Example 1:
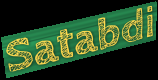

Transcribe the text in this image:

Satabdi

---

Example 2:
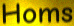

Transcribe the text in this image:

Homs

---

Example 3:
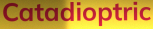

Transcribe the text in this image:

Catadioptric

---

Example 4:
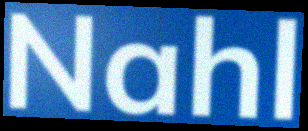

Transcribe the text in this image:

Nahl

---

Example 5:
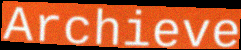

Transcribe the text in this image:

Archieve